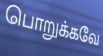
பொறுக்கவே